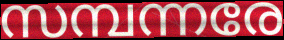
സമ്പന്നരേ